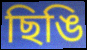
ছিঙি